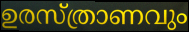
ഉരസ്ത്രാണവും